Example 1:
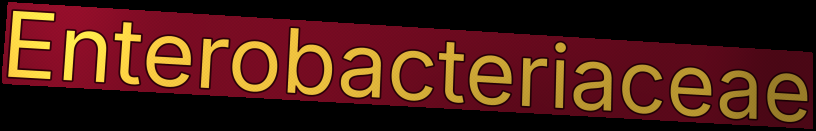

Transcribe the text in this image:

Enterobacteriaceae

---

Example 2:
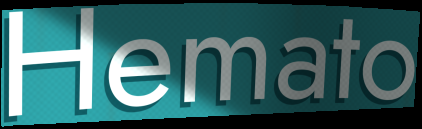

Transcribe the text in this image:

Hemato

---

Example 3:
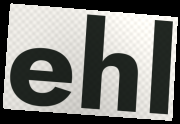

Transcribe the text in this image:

ehl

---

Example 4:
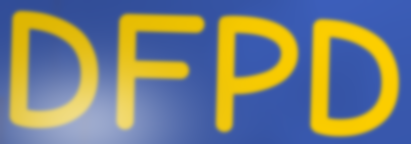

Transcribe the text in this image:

DFPD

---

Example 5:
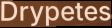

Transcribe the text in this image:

Drypetes